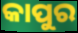
କାପୁର